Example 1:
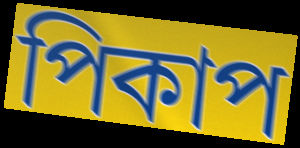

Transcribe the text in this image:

পিকাপ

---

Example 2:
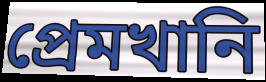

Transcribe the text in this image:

প্রেমখানি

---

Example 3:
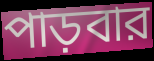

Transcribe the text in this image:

পাড়বার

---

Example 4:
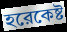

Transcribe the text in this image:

হরেকেষ্ট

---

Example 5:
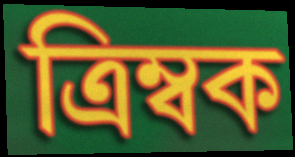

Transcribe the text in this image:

ত্রিম্বক